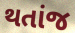
થતાંજ